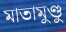
মাতামুণ্ডু